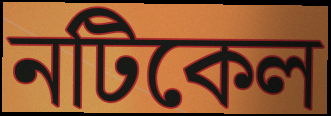
নটিকেল